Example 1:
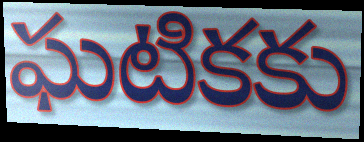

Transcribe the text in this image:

ఘటికకు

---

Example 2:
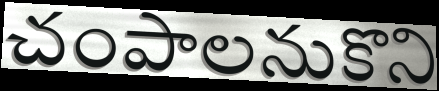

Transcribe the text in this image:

చంపాలనుకొని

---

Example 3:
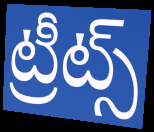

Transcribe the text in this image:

ట్రీట్స్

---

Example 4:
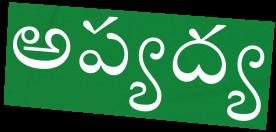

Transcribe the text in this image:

అప్యద్య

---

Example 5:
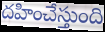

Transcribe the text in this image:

దహించేస్తుంది